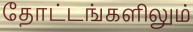
தோட்டங்களிலும்